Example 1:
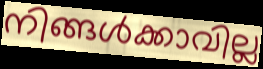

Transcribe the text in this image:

നിങ്ങൾക്കാവില്ല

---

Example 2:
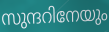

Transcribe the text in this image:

സുന്ദറിനേയും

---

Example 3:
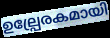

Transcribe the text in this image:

ഉല്പ്രേരകമായി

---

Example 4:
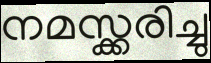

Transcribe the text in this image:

നമസ്ക്കരിച്ചു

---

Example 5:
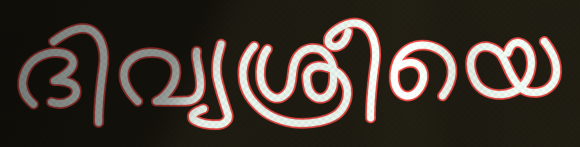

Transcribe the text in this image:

ദിവ്യശ്രീയെ